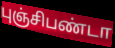
புஞ்சிபண்டா